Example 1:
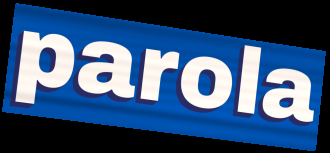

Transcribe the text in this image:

parola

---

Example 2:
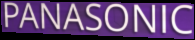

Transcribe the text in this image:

PANASONIC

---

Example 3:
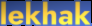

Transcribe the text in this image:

lekhak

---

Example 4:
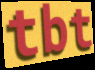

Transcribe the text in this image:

tbt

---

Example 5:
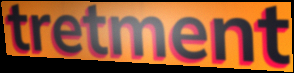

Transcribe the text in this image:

tretment